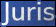
Juris